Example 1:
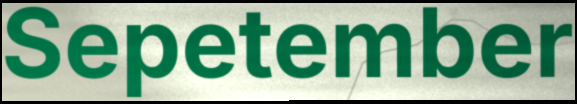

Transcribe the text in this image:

Sepetember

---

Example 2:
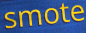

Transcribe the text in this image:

smote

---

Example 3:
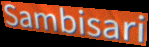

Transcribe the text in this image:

Sambisari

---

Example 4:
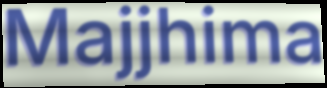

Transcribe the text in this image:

Majjhima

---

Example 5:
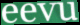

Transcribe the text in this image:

eevu